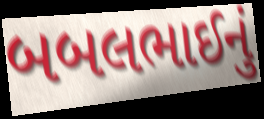
બબલભાઈનું